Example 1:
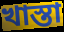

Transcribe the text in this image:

খাস্তা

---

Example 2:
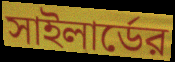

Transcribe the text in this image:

সাইলার্ডের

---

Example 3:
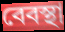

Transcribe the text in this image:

বেবস্থা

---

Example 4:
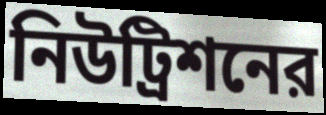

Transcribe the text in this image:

নিউট্রিশনের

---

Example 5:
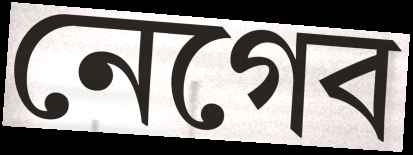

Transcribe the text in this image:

নেগেব